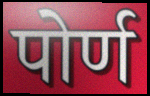
पोर्ण